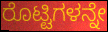
ರೊಟ್ಟಿಗಳನ್ನೇ